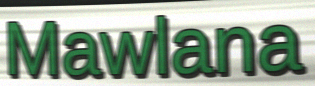
Mawlana